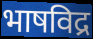
भाषविद्र